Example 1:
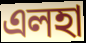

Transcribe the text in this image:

এলহা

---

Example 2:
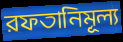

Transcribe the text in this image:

রফতানিমূল্য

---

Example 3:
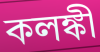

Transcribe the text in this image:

কলঙ্কী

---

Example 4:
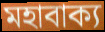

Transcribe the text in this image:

মহাবাক্য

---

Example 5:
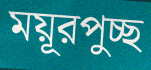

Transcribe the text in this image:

ময়ূরপুচ্ছ